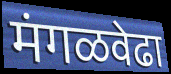
मंगळवेढा